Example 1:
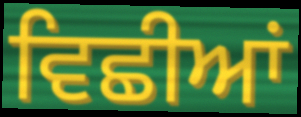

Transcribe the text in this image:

ਵਿਛੀਆਂ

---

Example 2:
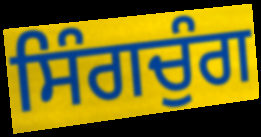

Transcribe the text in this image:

ਸਿੰਗਚੁੰਗ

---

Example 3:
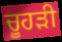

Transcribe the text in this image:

ਚੂਹੜੀ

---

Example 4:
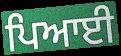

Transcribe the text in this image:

ਪਿਆਈ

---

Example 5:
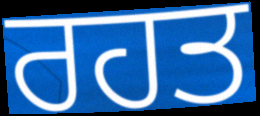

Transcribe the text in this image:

ਰਹਤ